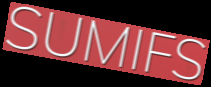
SUMIFS